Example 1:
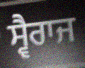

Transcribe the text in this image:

ਸ੍ਵੈਰਾਜ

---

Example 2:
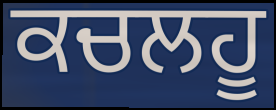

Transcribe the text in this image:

ਕਚਲਹੂ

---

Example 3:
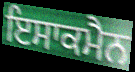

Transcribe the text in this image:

ਇਸਾਕਮੈਨ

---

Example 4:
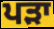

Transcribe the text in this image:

ਪੜਾ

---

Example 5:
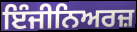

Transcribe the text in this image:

ਇੰਜੀਨਿਅਰਜ਼